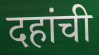
दहांची